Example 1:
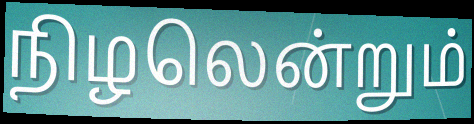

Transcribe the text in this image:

நிழலென்றும்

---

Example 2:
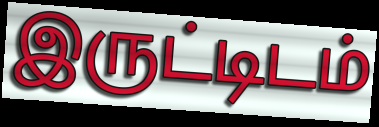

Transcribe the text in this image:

இருட்டிடம்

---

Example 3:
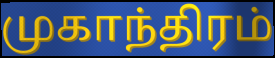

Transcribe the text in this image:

முகாந்திரம்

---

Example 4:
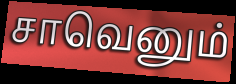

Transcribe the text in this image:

சாவெனும்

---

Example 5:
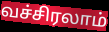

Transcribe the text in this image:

வச்சிரலாம்